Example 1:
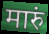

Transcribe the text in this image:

मारुं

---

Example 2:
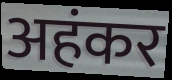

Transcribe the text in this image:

अहंकर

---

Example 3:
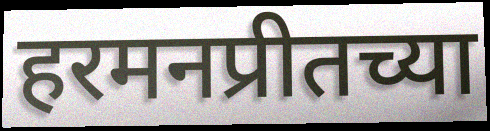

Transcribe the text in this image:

हरमनप्रीतच्या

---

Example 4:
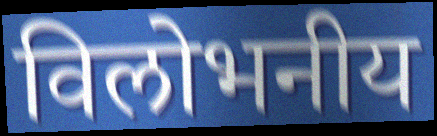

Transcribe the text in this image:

विलोभनीय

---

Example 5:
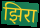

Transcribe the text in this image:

झिरा